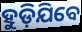
ହୁଡ଼ିଯିବେ